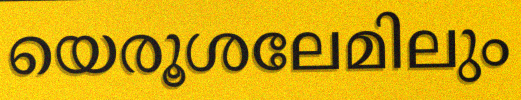
യെരൂശലേമിലും